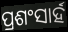
ପ୍ରଶଂସାର୍ହ